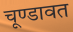
चूण्डावत